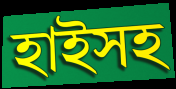
হাইসহ